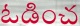
ఓడించ